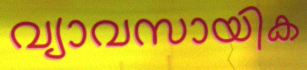
വ്യാവസായിക